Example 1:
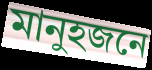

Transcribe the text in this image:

মানুহজনে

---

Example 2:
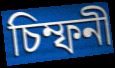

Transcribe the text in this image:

চিম্ফনী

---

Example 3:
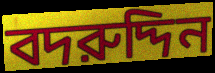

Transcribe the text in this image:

বদৰুদ্দিন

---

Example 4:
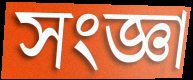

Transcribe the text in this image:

সংজ্ঞা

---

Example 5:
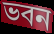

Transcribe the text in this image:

ভবন